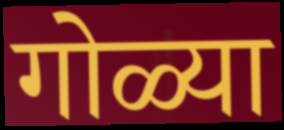
गोळ्या